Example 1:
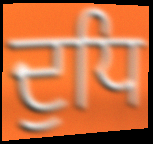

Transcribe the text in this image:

ਦੁਧਿ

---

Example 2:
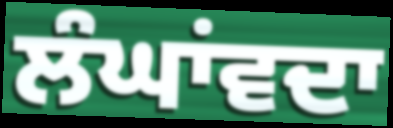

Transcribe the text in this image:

ਲੰਘਾਂਵਦਾ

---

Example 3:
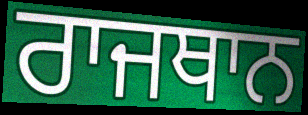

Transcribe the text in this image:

ਰਾਜਥਾਨ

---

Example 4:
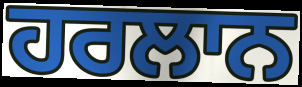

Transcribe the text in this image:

ਹਰਲਾਨ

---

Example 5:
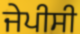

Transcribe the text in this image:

ਜੇਪੀਸੀ